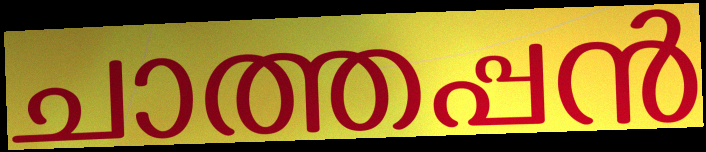
ചാത്തപ്പൻ